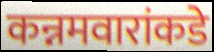
कन्नमवारांकडे